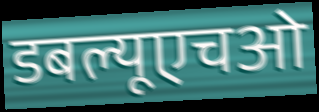
डबल्यूएचओ